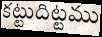
కట్టుదిట్టము